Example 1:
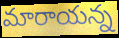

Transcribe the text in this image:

మారాయన్న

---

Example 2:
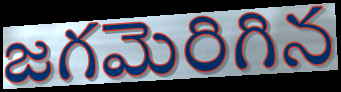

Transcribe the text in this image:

జగమెరిగిన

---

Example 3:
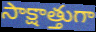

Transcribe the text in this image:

సాక్షాత్తుగా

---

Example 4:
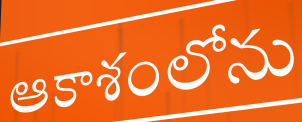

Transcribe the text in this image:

ఆకాశంలోను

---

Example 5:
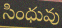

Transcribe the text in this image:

సింధువు